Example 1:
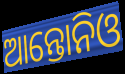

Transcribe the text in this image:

ଆନ୍ତୋନିଓ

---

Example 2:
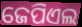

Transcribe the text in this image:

ଜେପିଏଲ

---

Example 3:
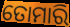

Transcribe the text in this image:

ତୋମାରି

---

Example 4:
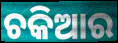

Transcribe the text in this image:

ଚକିଆର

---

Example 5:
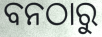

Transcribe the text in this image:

ବନଠାରୁ